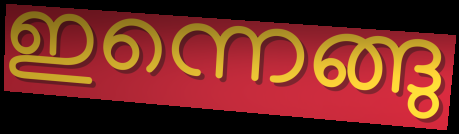
ഇന്നെങ്ങു